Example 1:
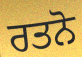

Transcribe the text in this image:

ਰਤਨੋ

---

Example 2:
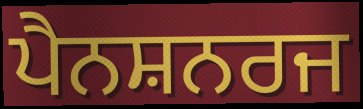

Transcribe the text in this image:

ਪੈਨਸ਼ਨਰਜ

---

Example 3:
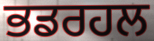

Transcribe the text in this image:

ਭਡਰਹਲ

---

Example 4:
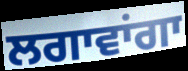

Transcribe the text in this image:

ਲਗਾਵਾਂਗਾ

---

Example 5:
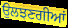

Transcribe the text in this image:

ਉਲਝਣਗੀਆਂ